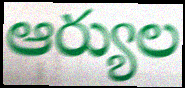
ఆర్యుల